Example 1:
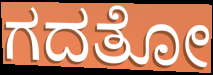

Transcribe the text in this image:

ಗದತೋ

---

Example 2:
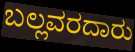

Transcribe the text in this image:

ಬಲ್ಲವರದಾರು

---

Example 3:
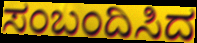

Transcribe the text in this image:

ಸಂಬಂದಿಸಿದ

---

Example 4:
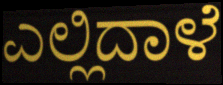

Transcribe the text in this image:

ಎಲ್ಲಿದಾಳೆ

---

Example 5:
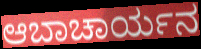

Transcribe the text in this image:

ಆಬಾಚಾರ್ಯನ